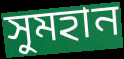
সুমহান